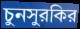
চুনসুরকির